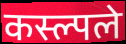
कस्ल्पले